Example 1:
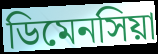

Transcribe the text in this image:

ডিমেনসিয়া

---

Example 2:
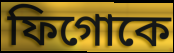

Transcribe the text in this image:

ফিগোকে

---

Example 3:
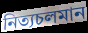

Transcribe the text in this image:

নিত্যচলমান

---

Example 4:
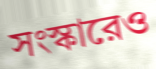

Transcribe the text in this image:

সংস্কারেও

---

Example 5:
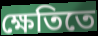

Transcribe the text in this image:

ক্ষেতিতে